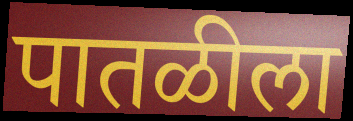
पातळीला